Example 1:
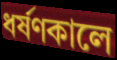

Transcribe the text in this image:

ধর্ষণকালে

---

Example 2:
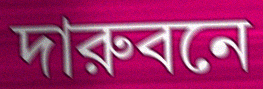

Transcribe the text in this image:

দারুবনে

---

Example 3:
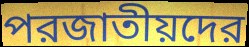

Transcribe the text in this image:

পরজাতীয়দের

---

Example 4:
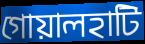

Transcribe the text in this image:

গোয়ালহাটি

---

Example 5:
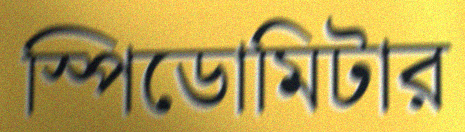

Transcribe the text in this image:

স্পিডোমিটার